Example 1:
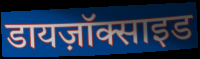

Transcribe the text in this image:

डायज़ॉक्साइड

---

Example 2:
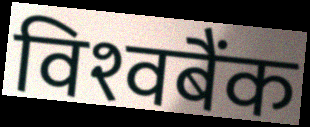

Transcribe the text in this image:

विश्वबैंक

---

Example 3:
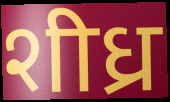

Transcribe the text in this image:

शीध्र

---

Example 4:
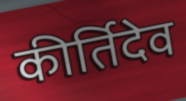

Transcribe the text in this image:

कीर्तिदेव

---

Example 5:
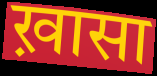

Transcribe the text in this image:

ख़ासा